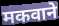
मकवाने